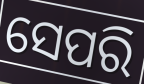
ସେପରି